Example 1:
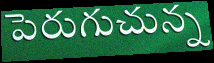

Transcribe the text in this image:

పెరుగుచున్న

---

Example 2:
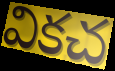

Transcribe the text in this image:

వికచ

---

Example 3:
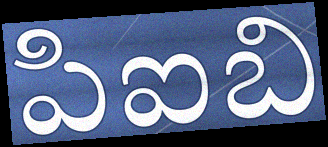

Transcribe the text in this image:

పిఐబి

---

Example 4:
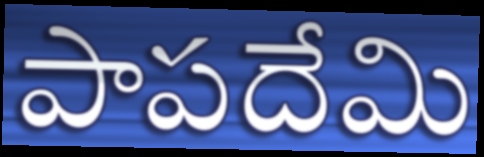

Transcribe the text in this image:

పాపదేమి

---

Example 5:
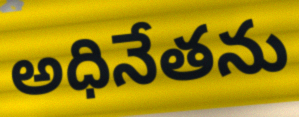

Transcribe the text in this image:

అధినేతను